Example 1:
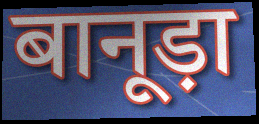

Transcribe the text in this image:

बानूड़ा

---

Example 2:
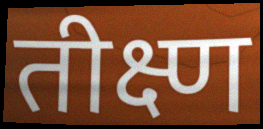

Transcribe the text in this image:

तीक्ष्ण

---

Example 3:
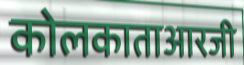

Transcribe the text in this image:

कोलकाताआरजी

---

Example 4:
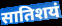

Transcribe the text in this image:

सातिशयं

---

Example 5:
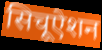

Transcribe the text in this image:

सिचूऐशन